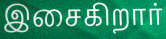
இசைகிறார்